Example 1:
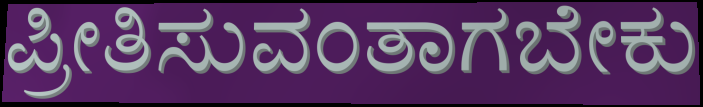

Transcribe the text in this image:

ಪ್ರೀತಿಸುವಂತಾಗಬೇಕು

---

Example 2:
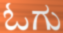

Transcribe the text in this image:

ಓಗು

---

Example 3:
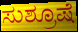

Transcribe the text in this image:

ಸುಶ್ರೂಷೆ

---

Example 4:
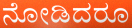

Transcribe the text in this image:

ನೋಡಿದರೂ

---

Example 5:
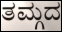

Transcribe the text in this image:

ತಮ್ಗದ